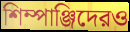
শিম্পাঞ্জিদেরও